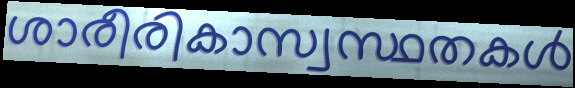
ശാരീരികാസ്വസ്ഥതകൾ